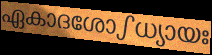
ഏകാദശോഽധ്യായഃ